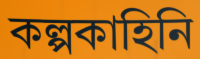
কল্পকাহিনি